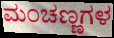
ಮಂಚಣ್ಣಗಳ